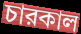
চারকাল